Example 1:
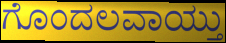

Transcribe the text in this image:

ಗೊಂದಲವಾಯ್ತು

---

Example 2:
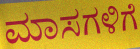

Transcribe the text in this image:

ಮಾಸಗಳಿಗೆ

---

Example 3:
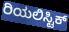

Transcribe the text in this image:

ರಿಯಲಿಸ್ಟಿಕ್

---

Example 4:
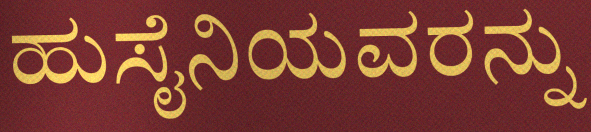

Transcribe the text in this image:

ಹುಸೈನಿಯವರನ್ನು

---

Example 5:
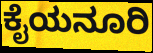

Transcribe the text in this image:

ಕೈಯನೂರಿ